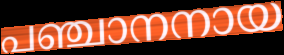
പഞ്ചാനനായ